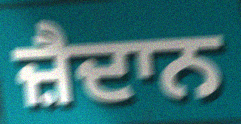
ਜ਼ੈਦਾਨ